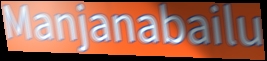
Manjanabailu